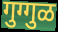
गुग्गुळ